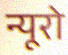
न्यूरो